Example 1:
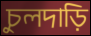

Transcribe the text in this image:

চুলদাড়ি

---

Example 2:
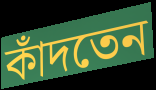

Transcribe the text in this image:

কাঁদতেন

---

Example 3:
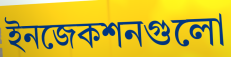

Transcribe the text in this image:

ইনজেকশনগুলো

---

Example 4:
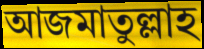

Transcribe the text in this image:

আজমাতুল্লাহ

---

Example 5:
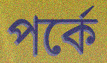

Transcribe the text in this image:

পর্কে